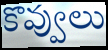
కొవ్వులు